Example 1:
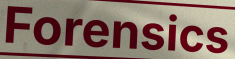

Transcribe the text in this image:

Forensics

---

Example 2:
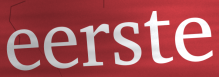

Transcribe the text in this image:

eerste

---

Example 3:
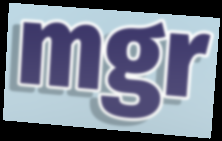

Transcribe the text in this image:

mgr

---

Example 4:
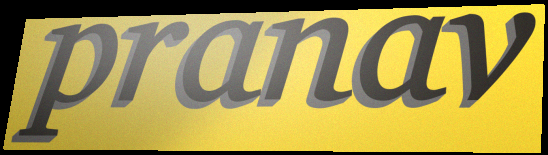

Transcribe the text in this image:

pranav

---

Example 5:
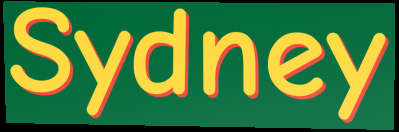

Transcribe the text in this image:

Sydney